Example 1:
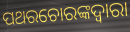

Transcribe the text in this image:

ପଥରଚୋରଙ୍କଦ୍ୱାରା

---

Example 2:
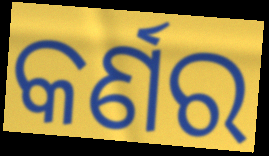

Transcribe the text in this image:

କର୍ଣର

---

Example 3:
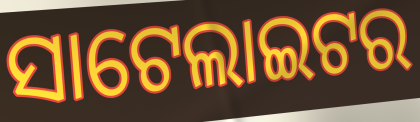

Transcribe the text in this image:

ସାଟେଲାଇଟର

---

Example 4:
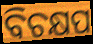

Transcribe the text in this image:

ବିଚକ୍ଷପ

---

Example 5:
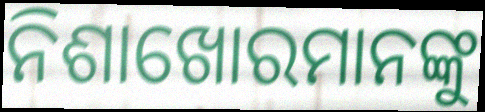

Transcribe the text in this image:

ନିଶାଖୋରମାନଙ୍କୁ